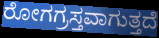
ರೋಗಗ್ರಸ್ತವಾಗುತ್ತದೆ